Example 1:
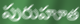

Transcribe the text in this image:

పురుహూత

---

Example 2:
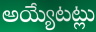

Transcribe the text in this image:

అయ్యేటట్లు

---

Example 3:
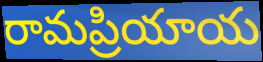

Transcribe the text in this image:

రామప్రియాయ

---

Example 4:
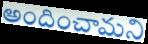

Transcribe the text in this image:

అందించామని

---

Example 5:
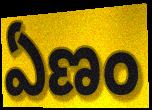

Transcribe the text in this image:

ఏణం